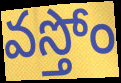
వస్తోం